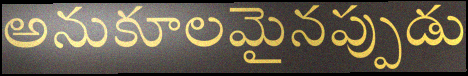
అనుకూలమైనప్పుడు